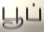
பூப்